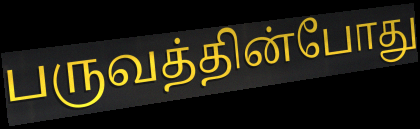
பருவத்தின்போது